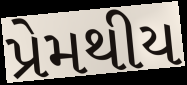
પ્રેમથીય